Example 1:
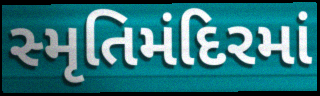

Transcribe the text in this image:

સ્મૃતિમંદિરમાં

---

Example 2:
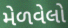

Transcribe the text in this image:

મેળવેલો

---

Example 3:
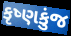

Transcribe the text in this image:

કૃષ્ણકુંજ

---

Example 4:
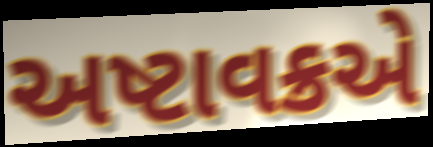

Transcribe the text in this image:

અષ્ટાવક્રએ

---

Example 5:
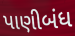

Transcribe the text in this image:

પાણીબંધ